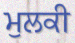
ਮੁਲਕੀ